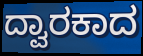
ದ್ವಾರಕಾದ